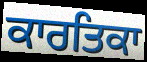
ਕਾਰਤਿਕਾ